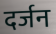
दर्जन